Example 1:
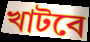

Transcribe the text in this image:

খাটবে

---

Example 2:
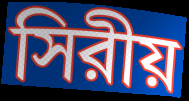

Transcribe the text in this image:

সিরীয়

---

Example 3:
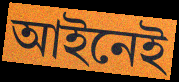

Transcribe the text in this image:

আইনেই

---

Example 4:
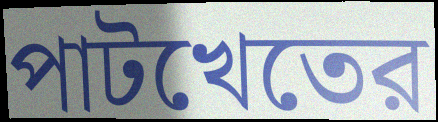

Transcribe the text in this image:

পাটখেতের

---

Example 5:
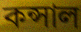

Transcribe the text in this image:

কন্সাল